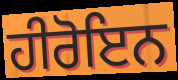
ਹੀਰੋਇਨ